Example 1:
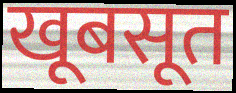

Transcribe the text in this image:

खूबसूत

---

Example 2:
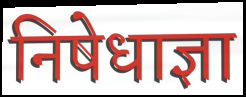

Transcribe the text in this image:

निषेधाज्ञा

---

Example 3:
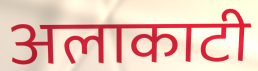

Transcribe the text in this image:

अलाकाटी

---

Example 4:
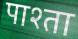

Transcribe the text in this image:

पाश्ता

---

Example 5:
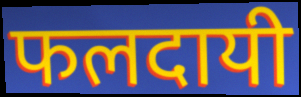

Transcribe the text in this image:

फलदायी